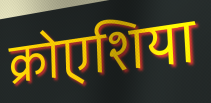
क्रोएशिया